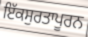
ਇੱਕਸੁਰਤਾਪੂਰਨ